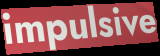
impulsive